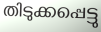
തിടുക്കപ്പെട്ടു